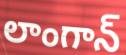
లాంగాన్